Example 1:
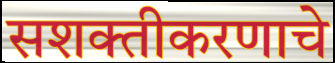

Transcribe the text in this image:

सशक्तीकरणाचे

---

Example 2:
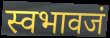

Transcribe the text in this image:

स्वभावजं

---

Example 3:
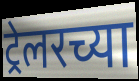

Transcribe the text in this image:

ट्रेलरच्या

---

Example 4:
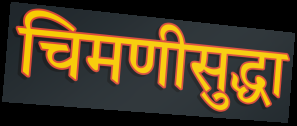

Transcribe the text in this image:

चिमणीसुद्धा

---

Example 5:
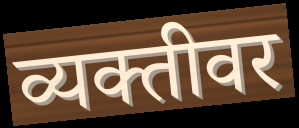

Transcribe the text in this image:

व्यक्तीवर